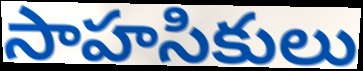
సాహసికులు